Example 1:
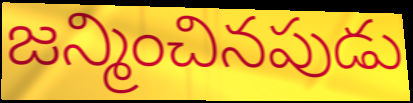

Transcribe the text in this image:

జన్మించినపుడు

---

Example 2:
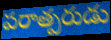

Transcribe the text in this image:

పరాత్పరుడు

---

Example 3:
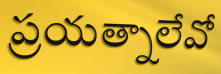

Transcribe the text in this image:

ప్రయత్నాలేవో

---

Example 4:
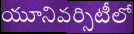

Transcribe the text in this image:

యూనివర్సిటీలో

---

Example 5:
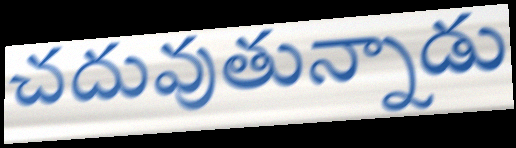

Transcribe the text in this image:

చదువుతున్నాడు